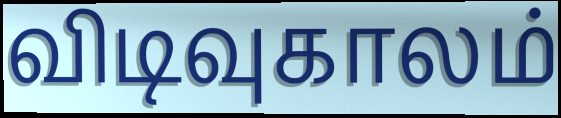
விடிவுகாலம்